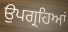
ਉਪਗ੍ਰਹਿਆਂ